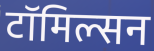
टॉमिल्सन